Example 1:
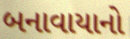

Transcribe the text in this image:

બનાવાયાનો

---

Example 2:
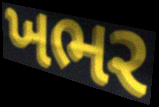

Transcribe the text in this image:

ખભર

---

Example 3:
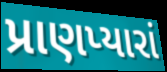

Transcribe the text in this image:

પ્રાણપ્યારાં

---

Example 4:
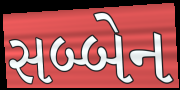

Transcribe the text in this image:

સબ્બેન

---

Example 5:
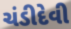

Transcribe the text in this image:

ચંડીદેવી